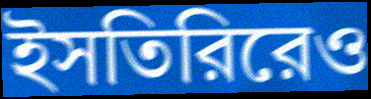
ইসতিরিরেও